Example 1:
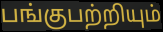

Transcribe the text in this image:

பங்குபற்றியும்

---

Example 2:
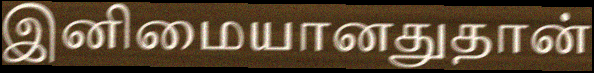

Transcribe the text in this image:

இனிமையானதுதான்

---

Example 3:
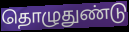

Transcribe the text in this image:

தொழுதுண்டு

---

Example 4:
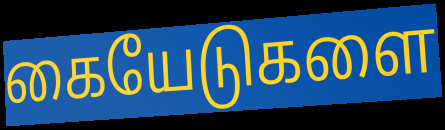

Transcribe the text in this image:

கையேடுகளை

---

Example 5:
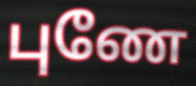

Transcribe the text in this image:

புணே